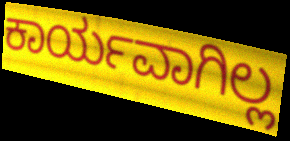
ಕಾರ್ಯವಾಗಿಲ್ಲ